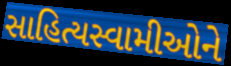
સાહિત્યસ્વામીઓને